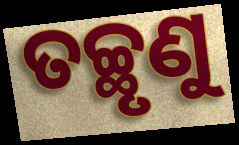
ତଚ୍ଛୃଣୁ